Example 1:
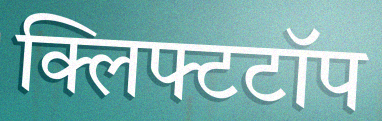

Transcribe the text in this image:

क्लिफ्टटॉप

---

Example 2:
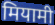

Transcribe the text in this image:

मियामी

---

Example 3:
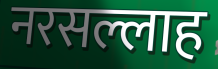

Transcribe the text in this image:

नरसल्लाह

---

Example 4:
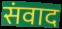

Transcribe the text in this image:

संवाद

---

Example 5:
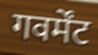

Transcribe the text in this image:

गवर्मेंट